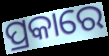
ପ୍ରକାରେ